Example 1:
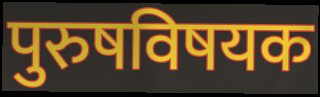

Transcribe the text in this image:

पुरुषविषयक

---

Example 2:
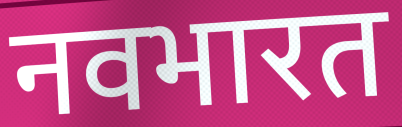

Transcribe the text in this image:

नवभारत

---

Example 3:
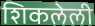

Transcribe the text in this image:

शिकलेली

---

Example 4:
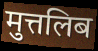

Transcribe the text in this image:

मुत्तलिब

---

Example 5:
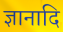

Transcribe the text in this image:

ज्ञानादि